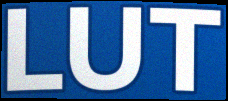
LUT